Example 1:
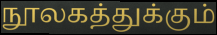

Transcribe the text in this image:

நூலகத்துக்கும்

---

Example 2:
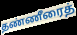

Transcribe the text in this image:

தண்ணீரைத்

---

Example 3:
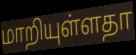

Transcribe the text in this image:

மாறியுள்ளதா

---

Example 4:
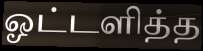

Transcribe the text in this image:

ஓட்டளித்த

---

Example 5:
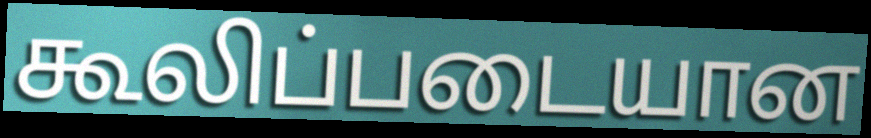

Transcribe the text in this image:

கூலிப்படையான